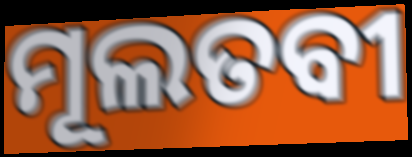
ମୂଲତବୀ